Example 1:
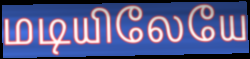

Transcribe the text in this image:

மடியிலேயே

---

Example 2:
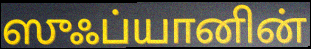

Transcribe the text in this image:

ஸுஃப்யானின்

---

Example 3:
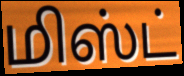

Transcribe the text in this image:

மிஸ்ட்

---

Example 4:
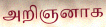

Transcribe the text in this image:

அறிஞனாக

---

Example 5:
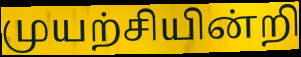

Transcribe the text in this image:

முயற்சியின்றி